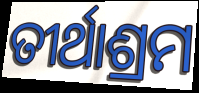
ତୀର୍ଥାଶ୍ରମ